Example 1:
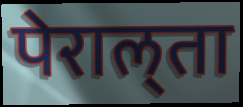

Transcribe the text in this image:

पेराल्ता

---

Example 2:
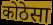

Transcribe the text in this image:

कोठेसा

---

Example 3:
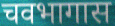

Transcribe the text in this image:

चवभागास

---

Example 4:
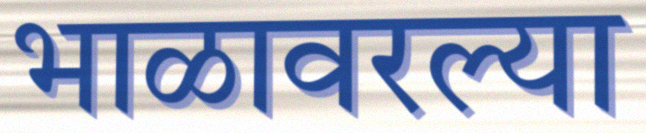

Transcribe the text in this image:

भाळावरल्या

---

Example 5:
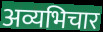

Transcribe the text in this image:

अव्यभिचार